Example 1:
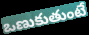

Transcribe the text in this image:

ఒణుకుతుంటే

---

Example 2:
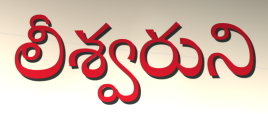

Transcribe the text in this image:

లీశ్వరుని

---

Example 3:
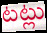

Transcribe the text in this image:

టట్లు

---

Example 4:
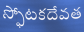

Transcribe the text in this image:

స్ఫోటకదేవత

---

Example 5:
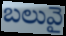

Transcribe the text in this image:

బలువై